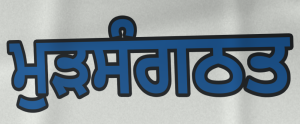
ਮੁੜਸੰਗਠਤ